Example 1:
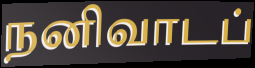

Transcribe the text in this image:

நனிவாடப்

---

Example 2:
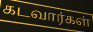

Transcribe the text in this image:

கடவார்கள்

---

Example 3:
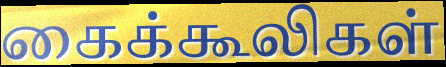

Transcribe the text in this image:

கைக்கூலிகள்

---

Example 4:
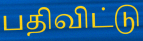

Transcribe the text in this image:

பதிவிட்டு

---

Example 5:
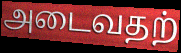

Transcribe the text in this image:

அடைவதற்